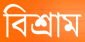
বিশ্ৰাম